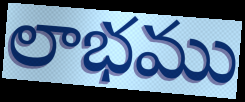
లాభము